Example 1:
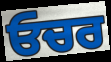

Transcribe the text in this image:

ਓਚਰ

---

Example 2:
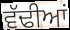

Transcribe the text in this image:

ਵੱਢੀਆਂ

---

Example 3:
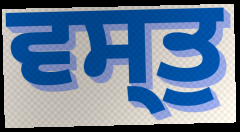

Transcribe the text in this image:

ਵਸ੍ਤੁ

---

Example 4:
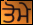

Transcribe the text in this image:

ਤੋਮੇ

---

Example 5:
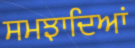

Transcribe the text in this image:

ਸਮਝਾਦਿਆਂ